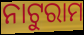
ନାଟୁରାମ